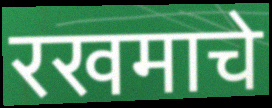
रखमाचे